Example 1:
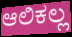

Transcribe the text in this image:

ಆಲಿಕಲ್ಲ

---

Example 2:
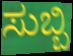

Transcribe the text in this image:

ಸುಬ್ಬಿ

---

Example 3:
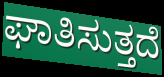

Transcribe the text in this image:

ಘಾತಿಸುತ್ತದೆ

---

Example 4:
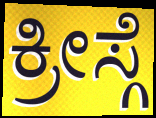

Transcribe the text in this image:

ಕ್ರೀಸ್ಗೆ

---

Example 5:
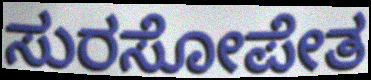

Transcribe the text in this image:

ಸುರಸೋಪೇತ